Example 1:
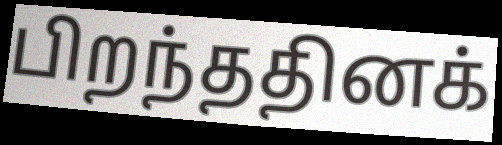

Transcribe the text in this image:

பிறந்ததினக்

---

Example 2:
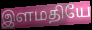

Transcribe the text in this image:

இளமதியே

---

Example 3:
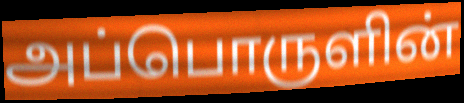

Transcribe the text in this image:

அப்பொருளின்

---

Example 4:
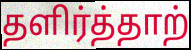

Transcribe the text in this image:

தளிர்த்தாற்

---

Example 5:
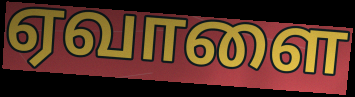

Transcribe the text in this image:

ஏவாளை